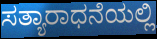
ಸತ್ಯಾರಾಧನೆಯಲ್ಲಿ